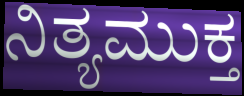
ನಿತ್ಯಮುಕ್ತ